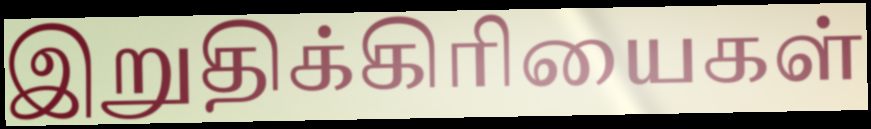
இறுதிக்கிரியைகள்